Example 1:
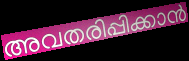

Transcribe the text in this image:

അവതരിപ്പിക്കാൻ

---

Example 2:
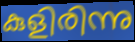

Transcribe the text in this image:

കുളിരിന്നു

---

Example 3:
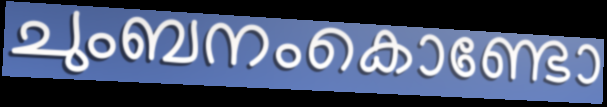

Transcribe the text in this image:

ചുംബനംകൊണ്ടോ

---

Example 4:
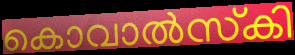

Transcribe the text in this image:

കൊവാൽസ്‌കി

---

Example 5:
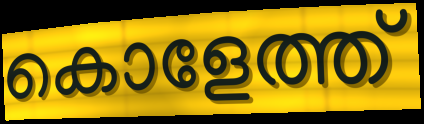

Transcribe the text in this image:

കൊളേത്ത്